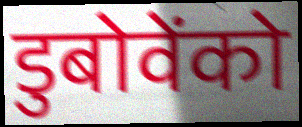
डुबोवेंको